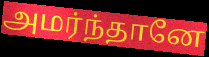
அமர்ந்தானே